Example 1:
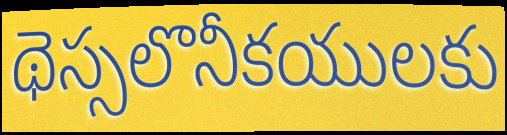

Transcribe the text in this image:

థెస్సలొనీకయులకు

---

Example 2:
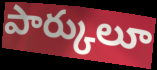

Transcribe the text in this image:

పార్కులూ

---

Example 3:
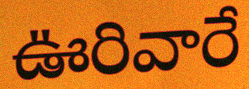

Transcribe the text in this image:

ఊరివారే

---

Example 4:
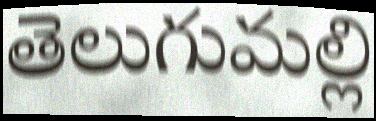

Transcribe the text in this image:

తెలుగుమల్లి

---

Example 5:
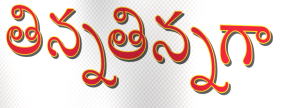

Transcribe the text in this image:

తిన్నతిన్నగా